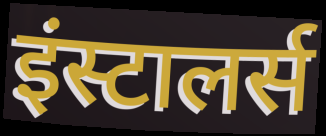
इंस्टालर्स